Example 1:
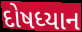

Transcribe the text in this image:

દોષધ્યાન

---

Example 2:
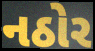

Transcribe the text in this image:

નઠોર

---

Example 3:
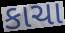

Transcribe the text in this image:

કાચા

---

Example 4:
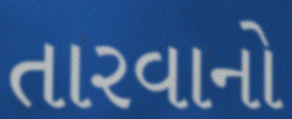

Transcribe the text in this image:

તારવાનો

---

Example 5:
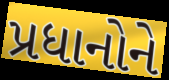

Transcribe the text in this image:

પ્રધાનોને